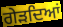
ਗੇੜਦਿਆਂ